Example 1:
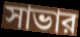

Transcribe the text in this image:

সাভার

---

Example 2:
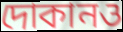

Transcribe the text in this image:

দোকানও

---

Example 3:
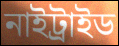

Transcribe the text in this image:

নাইট্রাইড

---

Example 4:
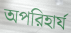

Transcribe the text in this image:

অপরিহার্য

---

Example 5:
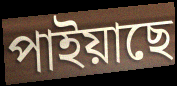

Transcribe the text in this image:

পাইয়াছে